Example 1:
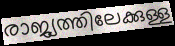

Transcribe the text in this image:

രാജ്യത്തിലേക്കുള്ള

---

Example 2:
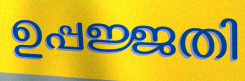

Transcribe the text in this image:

ഉപ്പജ്ജതി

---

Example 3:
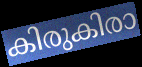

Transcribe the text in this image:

കിരുകിരാ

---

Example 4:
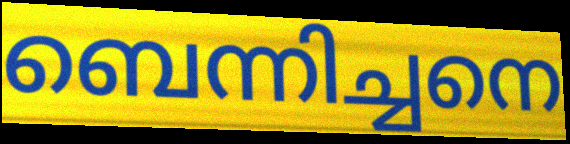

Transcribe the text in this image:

ബെന്നിച്ചനെ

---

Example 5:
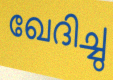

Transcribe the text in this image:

ഖേദിച്ചു